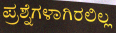
ಪ್ರಶ್ನೆಗಳಾಗಿರಲಿಲ್ಲ